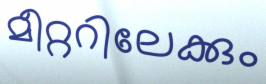
മീറ്ററിലേക്കും